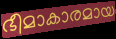
ഭീമാകാരമായ